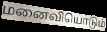
மனைவியொடும்